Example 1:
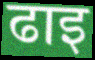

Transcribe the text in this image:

ढाइ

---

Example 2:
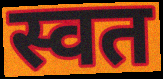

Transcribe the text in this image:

स्वत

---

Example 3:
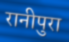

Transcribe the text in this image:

रानीपुरा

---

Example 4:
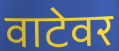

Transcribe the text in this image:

वाटेवर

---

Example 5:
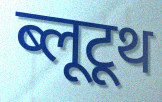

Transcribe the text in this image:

ब्लूटूथ